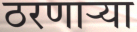
ठरणाऱ्या